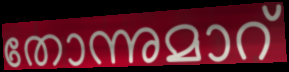
തോന്നുമാറ്